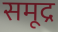
समूद्र